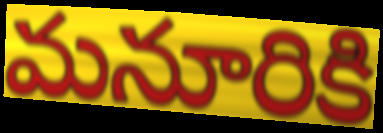
మనూరికి